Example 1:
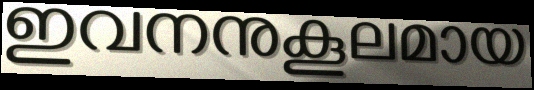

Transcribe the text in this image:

ഇവനനുകൂലമായ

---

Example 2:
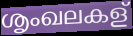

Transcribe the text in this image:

ശൃംഖലകള്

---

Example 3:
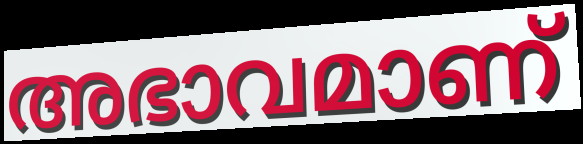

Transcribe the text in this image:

അഭാവമാണ്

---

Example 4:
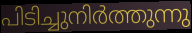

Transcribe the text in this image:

പിടിച്ചുനിർത്തുന്നു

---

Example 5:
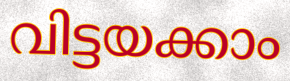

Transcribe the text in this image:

വിട്ടയക്കാം